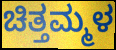
ಚಿತ್ತಮ್ಮಳ